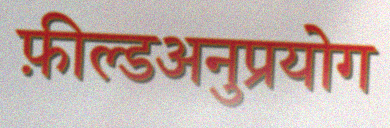
फ़ील्डअनुप्रयोग